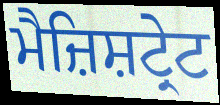
ਮੈਜ਼ਿਸ਼ਟ੍ਰੇਟ